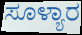
ಸೂಳ್ಯಾರ